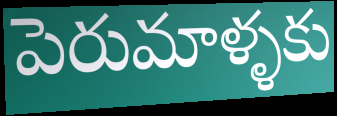
పెరుమాళ్ళకు